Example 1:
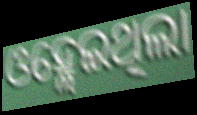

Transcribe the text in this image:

ଓହ୍ଲେଇଥିଲା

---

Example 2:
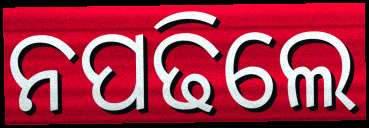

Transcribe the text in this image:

ନପଢିଲେ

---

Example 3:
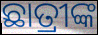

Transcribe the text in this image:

ଛାତ୍ରୀଙ୍କ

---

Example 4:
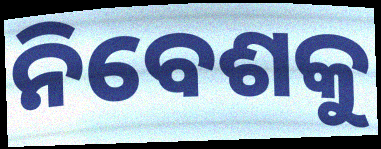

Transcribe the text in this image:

ନିବେଶକୁ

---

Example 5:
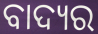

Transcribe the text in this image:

ବାଦ୍ୟର